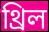
থ্রিল